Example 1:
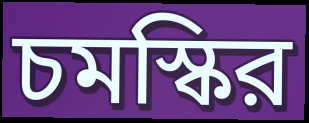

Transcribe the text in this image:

চমস্কির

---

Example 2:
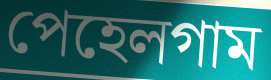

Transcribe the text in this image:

পেহেলগাম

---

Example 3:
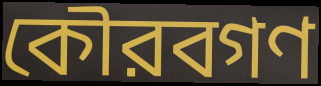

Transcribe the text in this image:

কৌরবগণ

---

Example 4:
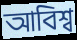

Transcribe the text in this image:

আবিশ্ব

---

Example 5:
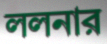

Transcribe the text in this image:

ললনার